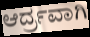
ಆರ್ದ್ರವಾಗಿ